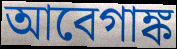
আবেগাঙ্ক